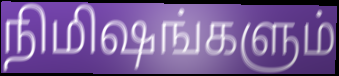
நிமிஷங்களும்